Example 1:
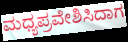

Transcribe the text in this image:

ಮಧ್ಯಪ್ರವೇಶಿಸಿದಾಗ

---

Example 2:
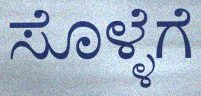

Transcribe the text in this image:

ಸೊಳ್ಳೆಗೆ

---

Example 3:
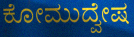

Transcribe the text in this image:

ಕೋಮುದ್ವೇಷ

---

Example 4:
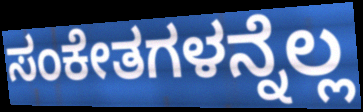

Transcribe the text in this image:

ಸಂಕೇತಗಳನ್ನೆಲ್ಲ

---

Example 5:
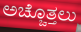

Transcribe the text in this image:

ಅಚ್ಚೊತ್ತಲು